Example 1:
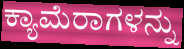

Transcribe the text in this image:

ಕ್ಯಾಮೆರಾಗಳನ್ನು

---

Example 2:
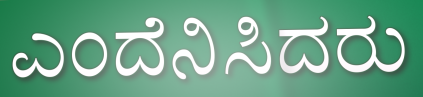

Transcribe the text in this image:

ಎಂದೆನಿಸಿದರು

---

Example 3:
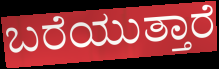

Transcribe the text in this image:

ಬರೆಯುತ್ತಾರೆ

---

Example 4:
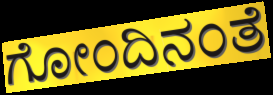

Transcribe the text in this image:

ಗೋಂದಿನಂತೆ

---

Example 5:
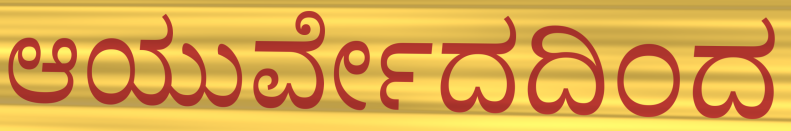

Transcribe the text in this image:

ಆಯುರ್ವೇದದಿಂದ